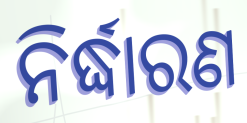
ନିର୍ଦ୍ଧାରଣ